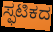
ಸ್ಫಟಿಕದ